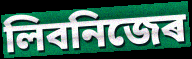
লিবনিজেৰ